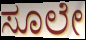
ಸೂಲೇ